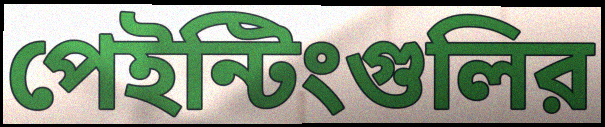
পেইন্টিংগুলির